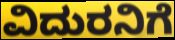
ವಿದುರನಿಗೆ